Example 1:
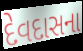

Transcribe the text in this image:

દેવદાસના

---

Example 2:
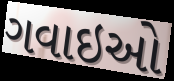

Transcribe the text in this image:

ગવાઇઓ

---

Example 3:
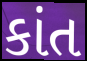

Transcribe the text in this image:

કાંત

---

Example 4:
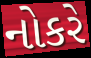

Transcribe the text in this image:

નોકરે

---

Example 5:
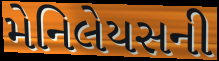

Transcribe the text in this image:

મેનિલેયસની